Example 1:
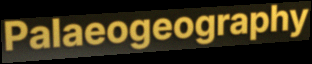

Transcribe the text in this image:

Palaeogeography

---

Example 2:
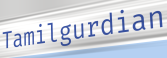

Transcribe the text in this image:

Tamilgurdian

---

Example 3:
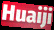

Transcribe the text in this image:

Huaiji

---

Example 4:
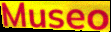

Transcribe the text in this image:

Museo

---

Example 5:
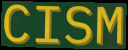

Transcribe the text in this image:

CISM